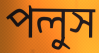
পলুস